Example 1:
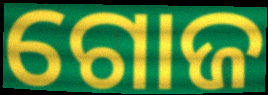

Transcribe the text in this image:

ଗୋଜ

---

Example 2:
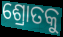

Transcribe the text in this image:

ଶ୍ରୋତକୁ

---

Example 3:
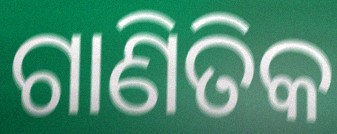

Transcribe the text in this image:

ଗାଣିତିକ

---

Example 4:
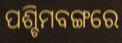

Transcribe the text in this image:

ପଶ୍ଚିମବଙ୍ଗରେ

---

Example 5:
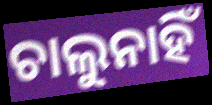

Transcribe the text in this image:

ଚାଲୁନାହିଁ